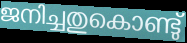
ജനിച്ചതുകൊണ്ടു്